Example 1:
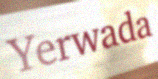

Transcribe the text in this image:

Yerwada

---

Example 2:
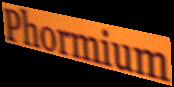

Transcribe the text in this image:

Phormium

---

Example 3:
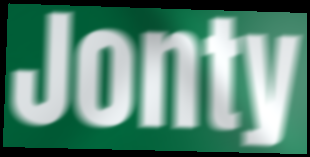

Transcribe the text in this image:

Jonty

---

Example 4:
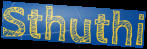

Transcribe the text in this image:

Sthuthi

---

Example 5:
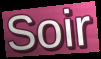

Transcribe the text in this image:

Soir